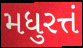
મધુરત્તં